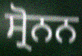
ਸ੍ਰੋਨਨ